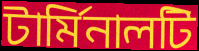
টার্মিনালটি